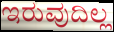
ಇರುವುದಿಲ್ಲ